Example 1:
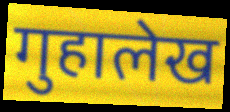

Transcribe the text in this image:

गुहालेख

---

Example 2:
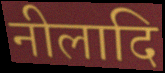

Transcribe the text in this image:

नीलादि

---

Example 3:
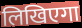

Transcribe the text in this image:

लिखिएगा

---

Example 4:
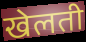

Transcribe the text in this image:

खेलती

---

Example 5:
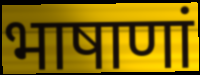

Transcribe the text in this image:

भाषाणां